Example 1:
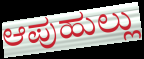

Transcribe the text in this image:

ಆಪುಹುಲ್ಲು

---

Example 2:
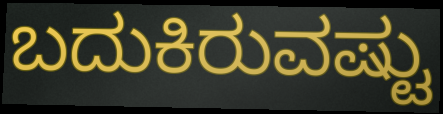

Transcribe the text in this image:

ಬದುಕಿರುವಷ್ಟು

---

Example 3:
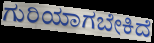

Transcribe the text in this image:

ಗುರಿಯಾಗಬೇಕಿದೆ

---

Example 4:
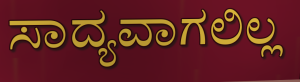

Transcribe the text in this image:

ಸಾದ್ಯವಾಗಲಿಲ್ಲ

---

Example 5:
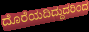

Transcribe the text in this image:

ದೊರೆಯದಿದ್ದುದರಿಂದ